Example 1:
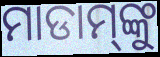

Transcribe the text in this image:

ମାଡାମ୍‌ଙ୍କୁ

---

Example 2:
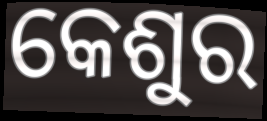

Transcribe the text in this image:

କେଶୁର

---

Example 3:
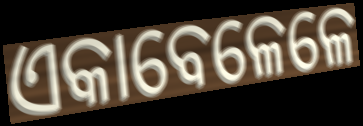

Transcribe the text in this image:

ଏକାବେଳେଳେ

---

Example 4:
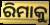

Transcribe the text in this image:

ରିମାକୁ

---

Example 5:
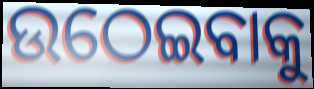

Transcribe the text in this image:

ଉଠେଇବାକୁ